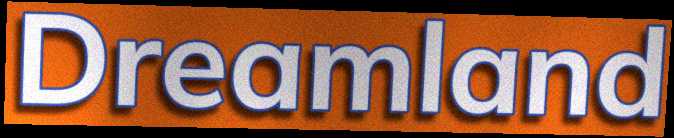
Dreamland